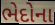
ભેદોના